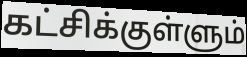
கட்சிக்குள்ளும்